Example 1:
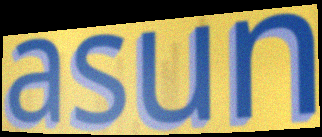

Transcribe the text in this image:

asun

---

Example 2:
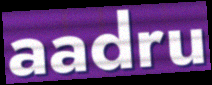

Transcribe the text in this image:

aadru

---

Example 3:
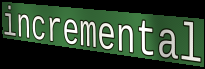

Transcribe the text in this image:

incremental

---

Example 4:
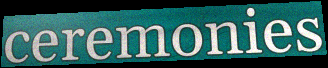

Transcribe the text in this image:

ceremonies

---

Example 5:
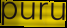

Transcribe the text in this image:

puru